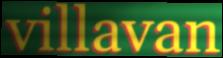
villavan